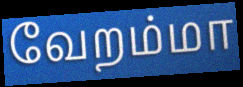
வேறம்மா